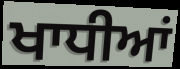
ਖਾਧੀਆਂ